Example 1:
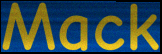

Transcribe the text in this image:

Mack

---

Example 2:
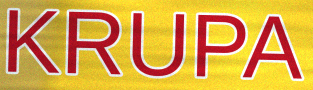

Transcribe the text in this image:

KRUPA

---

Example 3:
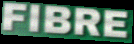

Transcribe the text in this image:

FIBRE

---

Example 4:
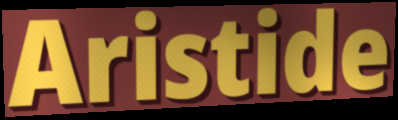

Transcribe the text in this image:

Aristide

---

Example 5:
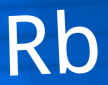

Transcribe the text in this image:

Rb